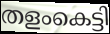
തളംകെട്ടി